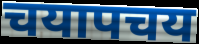
चयापचय